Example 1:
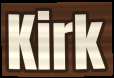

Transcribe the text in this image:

Kirk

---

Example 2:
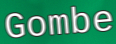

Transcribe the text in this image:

Gombe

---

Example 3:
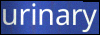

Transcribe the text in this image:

urinary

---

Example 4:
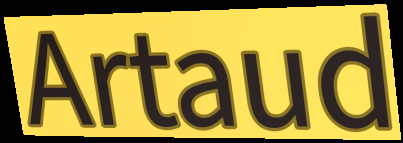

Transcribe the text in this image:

Artaud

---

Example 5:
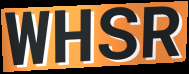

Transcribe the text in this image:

WHSR